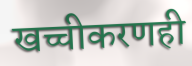
खच्चीकरणही